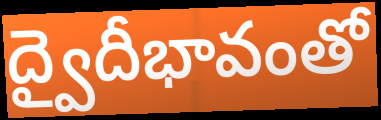
ద్వైదీభావంతో